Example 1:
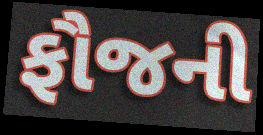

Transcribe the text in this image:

ફૌજની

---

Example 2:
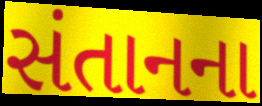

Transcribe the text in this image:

સંતાનના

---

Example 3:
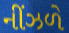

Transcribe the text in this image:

નીંઝળે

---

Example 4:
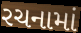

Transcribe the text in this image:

રચનામાં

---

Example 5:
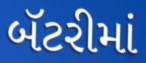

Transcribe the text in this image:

બૅટરીમાં